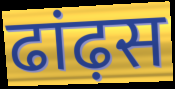
ढांढ़स